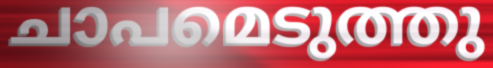
ചാപമെടുത്തു